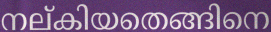
നല്കിയതെങ്ങിനെ